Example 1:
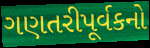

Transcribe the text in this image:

ગણતરીપૂર્વકનો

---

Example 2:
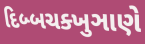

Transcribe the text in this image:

દિબ્બચક્ખુઞાણે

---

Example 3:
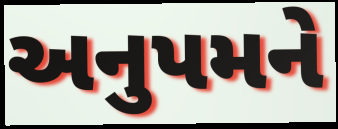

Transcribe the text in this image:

અનુપમને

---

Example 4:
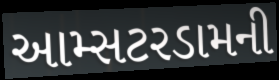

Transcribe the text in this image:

આમ્સટરડામની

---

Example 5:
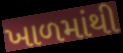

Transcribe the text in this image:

ખાળમાંથી